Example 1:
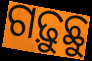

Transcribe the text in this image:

ଗଢ଼ୁଛୁ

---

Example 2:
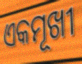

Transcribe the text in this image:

ଏକମୂଖୀ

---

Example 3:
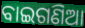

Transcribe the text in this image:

ବାଇଗଣିଆ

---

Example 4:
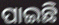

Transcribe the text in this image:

ପାଇଛି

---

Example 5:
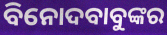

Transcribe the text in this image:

ବିନୋଦବାବୁଙ୍କର